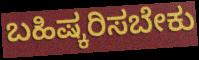
ಬಹಿಷ್ಕರಿಸಬೇಕು